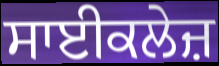
ਸਾਈਕਲੇਜ਼